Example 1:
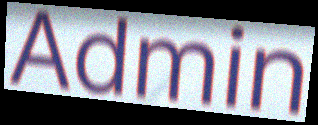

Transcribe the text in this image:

Admin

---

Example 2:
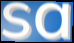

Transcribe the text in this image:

sa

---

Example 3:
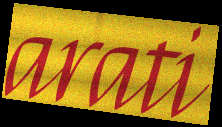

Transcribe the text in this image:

arati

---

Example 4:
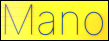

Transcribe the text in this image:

Mano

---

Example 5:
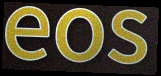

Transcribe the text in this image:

eos